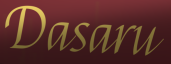
Dasaru